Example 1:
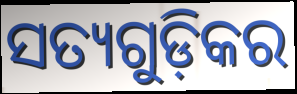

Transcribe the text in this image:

ସତ୍ୟଗୁଡ଼ିକର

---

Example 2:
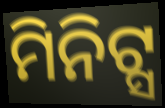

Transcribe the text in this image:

ମିନିଟ୍ସ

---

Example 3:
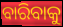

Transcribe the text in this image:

ବାରିବାକୁ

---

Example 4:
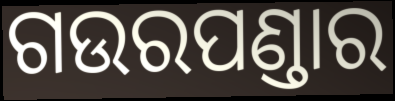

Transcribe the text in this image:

ଗଉରପଣ୍ଡାର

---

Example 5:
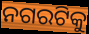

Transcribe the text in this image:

ନଗରଟିକୁ